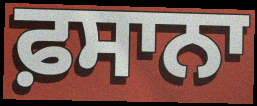
ਫ਼ਸਾਨਾ